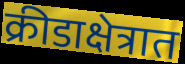
क्रीडाक्षेत्रात